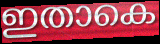
ഇതാകെ